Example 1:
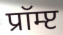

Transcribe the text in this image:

प्रॉम्प्ट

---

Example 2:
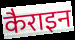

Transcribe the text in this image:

कैराइन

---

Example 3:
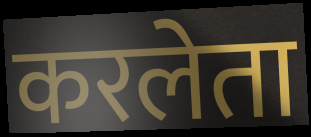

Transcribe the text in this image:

करलेता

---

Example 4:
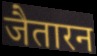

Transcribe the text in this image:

जैतारन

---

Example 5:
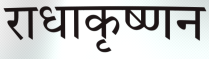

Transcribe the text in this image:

राधाकृष्णन